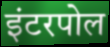
इंटरपोल